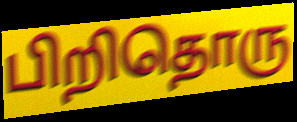
பிறிதொரு